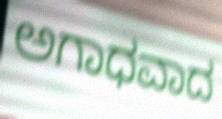
ಅಗಾಧವಾದ